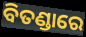
ବିତଣ୍ଡାରେ